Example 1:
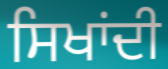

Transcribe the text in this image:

ਸਿਖਾਂਦੀ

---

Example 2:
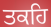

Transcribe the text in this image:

ਤਕਹਿ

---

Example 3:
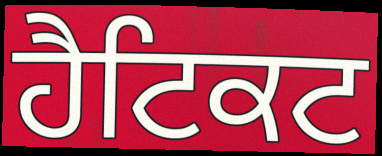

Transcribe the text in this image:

ਹੈਟਿਕਟ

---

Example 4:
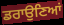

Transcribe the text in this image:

ਡਰਾਉਣਿਆਂ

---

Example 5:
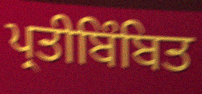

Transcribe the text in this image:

ਪ੍ਰਤੀਬਿੰਬਿਤ